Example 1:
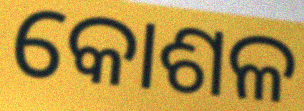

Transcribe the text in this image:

କୋଶଳ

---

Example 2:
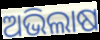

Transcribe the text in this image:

ଅଭିଲାଷ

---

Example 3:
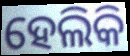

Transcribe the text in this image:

ହେଲିକି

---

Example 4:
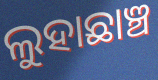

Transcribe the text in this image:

ଲୁହାଛାଞ୍ଚ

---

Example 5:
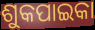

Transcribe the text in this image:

ଶୁକପାଇକା